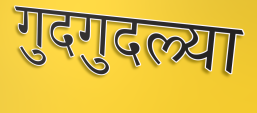
गुदगुदल्या